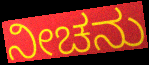
ನೀಚನು